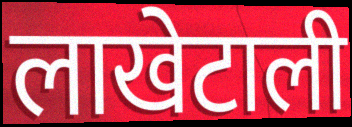
लाखेटाली